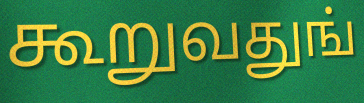
கூறுவதுங்